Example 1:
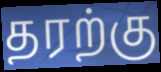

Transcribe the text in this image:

தரற்கு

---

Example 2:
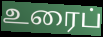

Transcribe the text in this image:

உரைப்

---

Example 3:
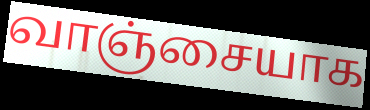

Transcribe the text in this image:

வாஞ்சையாக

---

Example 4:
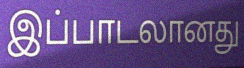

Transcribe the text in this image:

இப்பாடலானது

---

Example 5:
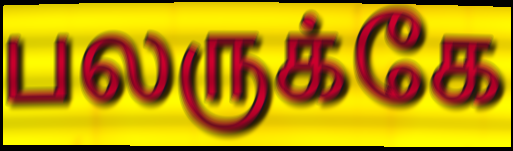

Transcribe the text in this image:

பலருக்கே